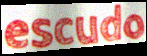
escudo